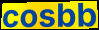
cosbb